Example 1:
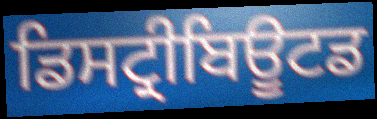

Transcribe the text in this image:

ਡਿਸਟ੍ਰੀਬਿਊਟਡ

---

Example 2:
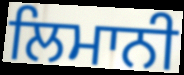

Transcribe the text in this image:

ਲਿਮਾਨੀ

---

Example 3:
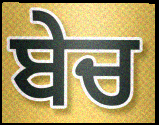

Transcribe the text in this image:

ਬੇਚ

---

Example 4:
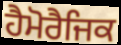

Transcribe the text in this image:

ਹੈਮੋਰੈਜਿਕ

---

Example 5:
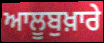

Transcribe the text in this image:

ਆਲੂਬੁਖ਼ਾਰੇ